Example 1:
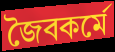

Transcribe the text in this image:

জৈবকর্মে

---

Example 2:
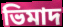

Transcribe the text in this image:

ভিমাদ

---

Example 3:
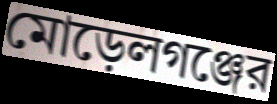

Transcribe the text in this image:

মোড়েলগঞ্জের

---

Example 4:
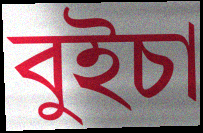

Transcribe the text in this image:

বুইচা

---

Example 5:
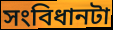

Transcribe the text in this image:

সংবিধানটা